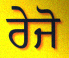
ਰੇਜੋ